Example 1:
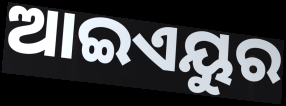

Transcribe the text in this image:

ଆଇଏୟୁର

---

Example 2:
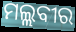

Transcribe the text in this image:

ମଲ୍ଲବୀର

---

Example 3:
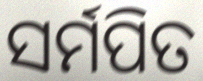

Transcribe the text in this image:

ସର୍ମପିତ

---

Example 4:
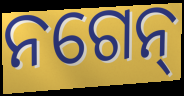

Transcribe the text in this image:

ନଗେନ୍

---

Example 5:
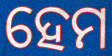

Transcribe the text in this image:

ହେମ